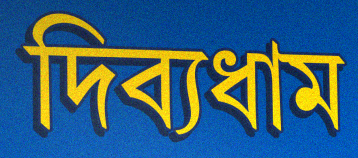
দিব্যধাম